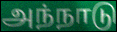
அந்நாடு